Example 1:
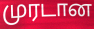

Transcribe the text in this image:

முரடான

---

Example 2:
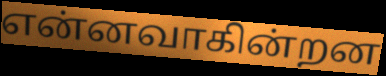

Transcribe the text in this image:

என்னவாகின்றன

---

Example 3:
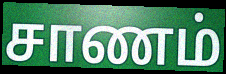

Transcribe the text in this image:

சாணம்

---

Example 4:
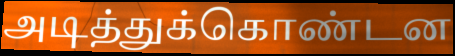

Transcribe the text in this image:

அடித்துக்கொண்டன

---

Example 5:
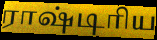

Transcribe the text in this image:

ராஷ்டிரிய